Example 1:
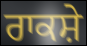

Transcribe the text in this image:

ਰਾਕਸ਼ੇ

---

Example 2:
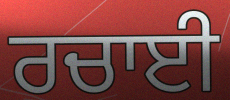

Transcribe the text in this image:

ਰਚਾਈ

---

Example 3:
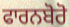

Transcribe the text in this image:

ਫਾਰਨਬੋਰੋ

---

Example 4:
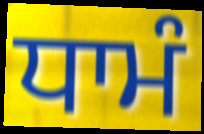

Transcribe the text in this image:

ਧਾਮੰ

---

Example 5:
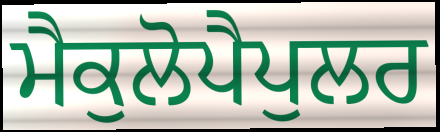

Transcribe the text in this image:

ਮੈਕੁਲੋਪੈਪੁਲਰ